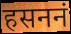
हसननं